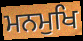
ਮਨਮੁਖਿ